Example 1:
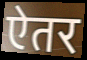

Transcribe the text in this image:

ऐतर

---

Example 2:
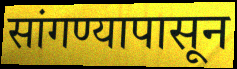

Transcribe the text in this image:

सांगण्यापासून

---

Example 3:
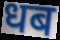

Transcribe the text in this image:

धब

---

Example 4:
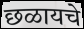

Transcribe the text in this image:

छळायचे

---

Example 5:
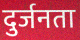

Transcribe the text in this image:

दुर्जनता